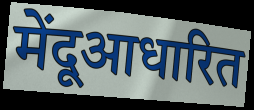
मेंदूआधारित